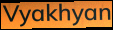
Vyakhyan